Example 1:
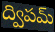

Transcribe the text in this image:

ద్విపమ్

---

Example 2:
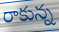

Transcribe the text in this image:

రాకున్న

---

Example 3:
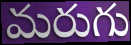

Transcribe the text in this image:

మరుగు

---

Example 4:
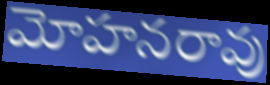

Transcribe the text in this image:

మోహనరావు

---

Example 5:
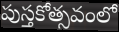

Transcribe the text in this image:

పుస్తకోత్సవంలో